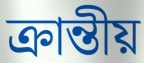
ক্রান্তীয়